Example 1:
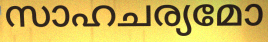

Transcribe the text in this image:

സാഹചര്യമോ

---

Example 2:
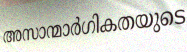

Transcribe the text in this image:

അസാന്മാർഗികതയുടെ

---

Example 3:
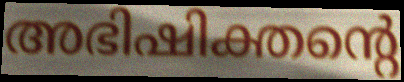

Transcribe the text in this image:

അഭിഷിക്തന്റെ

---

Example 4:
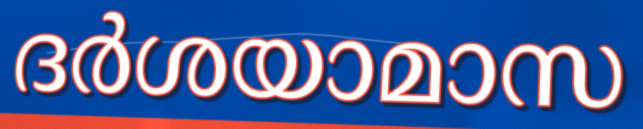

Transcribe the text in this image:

ദർശയാമാസ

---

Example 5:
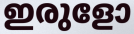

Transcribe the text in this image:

ഇരുളോ